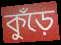
কুঁড়ে